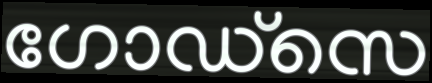
ഗോഡ്സെ